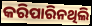
କରିପାରିନଥିଲି